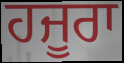
ਹਜੂਰਾ